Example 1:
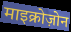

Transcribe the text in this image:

माइक्रोज़ोन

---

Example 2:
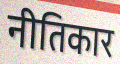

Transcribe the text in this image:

नीतिकार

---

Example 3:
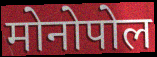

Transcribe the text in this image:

मोनोपोल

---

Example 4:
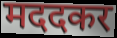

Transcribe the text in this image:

मददकर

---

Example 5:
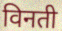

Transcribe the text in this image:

विनती